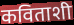
कविताशी